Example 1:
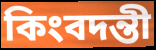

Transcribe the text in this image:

কিংবদন্তী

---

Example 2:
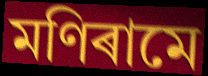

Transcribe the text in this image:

মণিৰামে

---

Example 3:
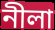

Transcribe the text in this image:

নীলা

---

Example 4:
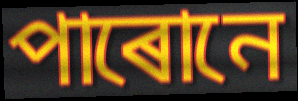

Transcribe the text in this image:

পাৰোনে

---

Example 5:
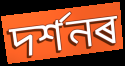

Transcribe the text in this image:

দৰ্শনৰ